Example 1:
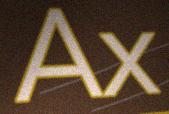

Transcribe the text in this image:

Ax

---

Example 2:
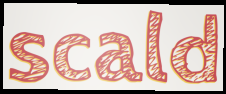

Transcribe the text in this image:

scald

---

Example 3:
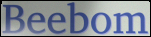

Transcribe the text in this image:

Beebom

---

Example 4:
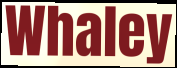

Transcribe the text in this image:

Whaley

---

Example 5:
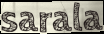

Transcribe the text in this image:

sarala